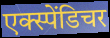
एक्स्पेंडिचर